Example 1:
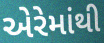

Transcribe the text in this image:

એરેમાંથી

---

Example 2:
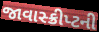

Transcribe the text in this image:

જાવાસ્ક્રીપ્ટની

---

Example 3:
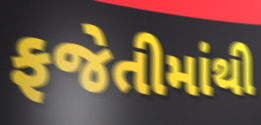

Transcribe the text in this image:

ફજેતીમાંથી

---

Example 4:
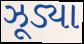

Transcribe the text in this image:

ઝૂડ્યા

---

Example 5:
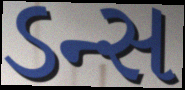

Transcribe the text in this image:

ડન્સ